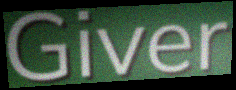
Giver